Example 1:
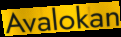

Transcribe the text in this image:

Avalokan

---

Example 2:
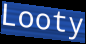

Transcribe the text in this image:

Looty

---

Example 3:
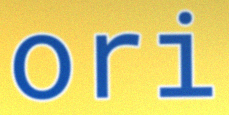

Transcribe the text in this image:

ori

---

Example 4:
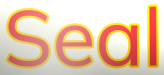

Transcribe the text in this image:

Seal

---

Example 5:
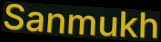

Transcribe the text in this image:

Sanmukh